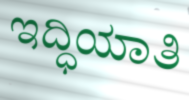
ಇದ್ಧಿಯಾತಿ